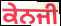
ਕੇਨਜੀ